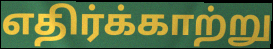
எதிர்க்காற்று